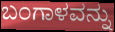
ಬಂಗಾಳವನ್ನು